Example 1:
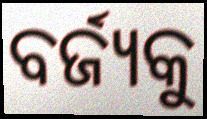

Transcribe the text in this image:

ବର୍ଜ୍ୟକୁ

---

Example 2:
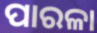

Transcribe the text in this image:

ପାରଳା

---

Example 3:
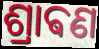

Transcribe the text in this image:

ଶ୍ରାଵଣ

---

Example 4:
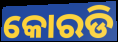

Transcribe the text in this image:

କୋରଡି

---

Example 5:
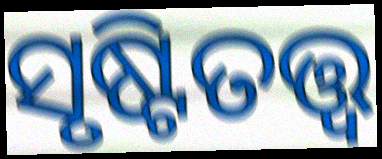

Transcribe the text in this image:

ସୃଷ୍ଟିତତ୍ତ୍ୱ